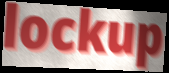
lockup